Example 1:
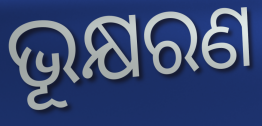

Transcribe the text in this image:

ଭୂକ୍ଷରଣ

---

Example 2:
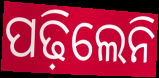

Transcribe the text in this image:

ପଢ଼ିଲେନି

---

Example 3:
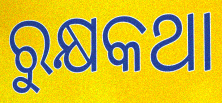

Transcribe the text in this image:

ରୁକ୍ଷକଥା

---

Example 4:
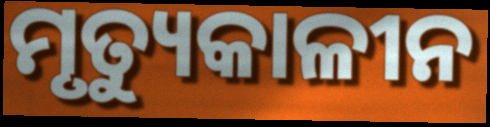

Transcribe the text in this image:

ମୃତ୍ୟୁକାଳୀନ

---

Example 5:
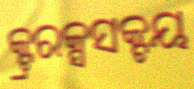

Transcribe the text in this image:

କ୍ଟ୍ରରକ୍ସସକ୍ଟୟ